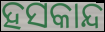
ହସକାନ୍ଦ